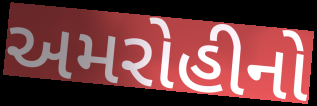
અમરોહીનો